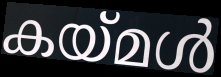
കയ്മൾ